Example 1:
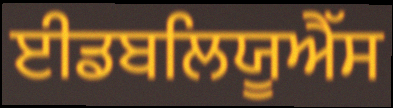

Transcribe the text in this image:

ਈਡਬਲਿਯੂਐੱਸ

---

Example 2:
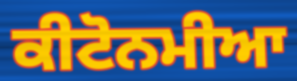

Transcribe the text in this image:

ਕੀਟੋਨਮੀਆ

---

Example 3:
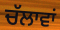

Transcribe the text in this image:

ਚੱਲਾਵਾਂ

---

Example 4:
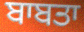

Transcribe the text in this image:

ਬਾਬਤਾ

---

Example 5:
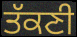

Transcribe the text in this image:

ਤੱਕਣੀ